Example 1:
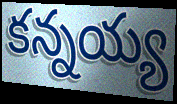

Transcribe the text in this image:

కన్నయ్య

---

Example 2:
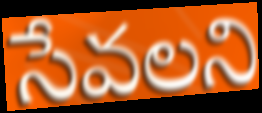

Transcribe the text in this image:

సేవలని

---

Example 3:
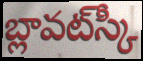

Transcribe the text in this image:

బ్లావట్‌స్కీ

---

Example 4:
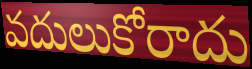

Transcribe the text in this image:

వదులుకోరాదు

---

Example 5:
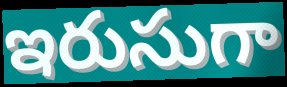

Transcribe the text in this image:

ఇరుసుగా